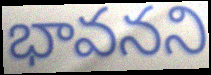
భావనని